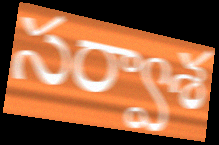
సర్వాశ